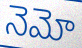
నెమో